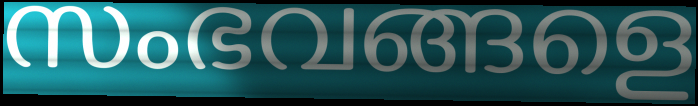
സംഭവങ്ങളെ